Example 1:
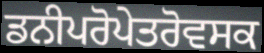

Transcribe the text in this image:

ਡਨੀਪਰੋਪੇਤਰੋਵਸਕ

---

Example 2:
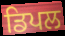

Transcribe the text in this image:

ਡਿਪਲ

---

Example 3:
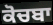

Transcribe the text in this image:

ਕੋਚਬਾ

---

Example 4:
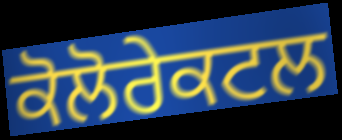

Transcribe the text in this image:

ਕੋਲੋਰੇਕਟਲ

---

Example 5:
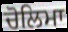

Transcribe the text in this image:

ਚੋਲਿਮਾ